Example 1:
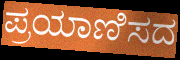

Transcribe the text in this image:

ಪ್ರಯಾಣಿಸದ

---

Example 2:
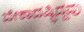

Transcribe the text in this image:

ಬೇಕಾದಷ್ಟಿದ್ದವು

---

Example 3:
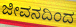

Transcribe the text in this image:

ಜೀವನದಿಂದ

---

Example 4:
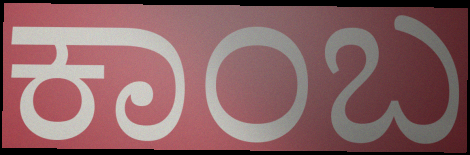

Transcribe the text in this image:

ಕಾಂಬ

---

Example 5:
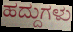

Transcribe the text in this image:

ಹದ್ದುಗಳು